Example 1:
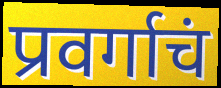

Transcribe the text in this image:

प्रवर्गाचं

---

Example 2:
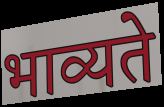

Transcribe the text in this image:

भाव्यते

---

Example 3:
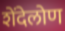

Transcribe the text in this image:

शेंदेलोण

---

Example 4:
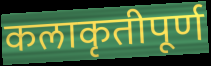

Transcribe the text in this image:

कलाकृतीपूर्ण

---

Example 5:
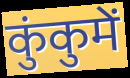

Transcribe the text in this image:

कुंकुमें